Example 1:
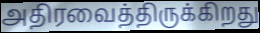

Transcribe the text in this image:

அதிரவைத்திருக்கிறது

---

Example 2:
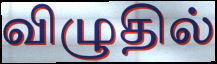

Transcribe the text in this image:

விழுதில்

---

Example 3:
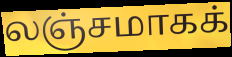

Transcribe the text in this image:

லஞ்சமாகக்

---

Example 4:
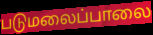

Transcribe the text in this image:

படுமலைப்பாலை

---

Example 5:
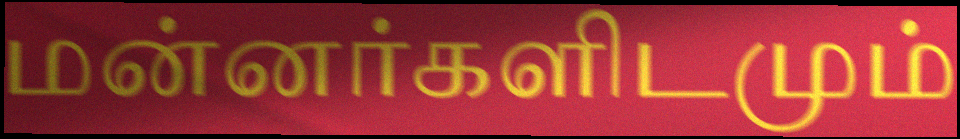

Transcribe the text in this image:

மன்னர்களிடமும்